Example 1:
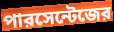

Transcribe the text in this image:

পারসেন্টেজের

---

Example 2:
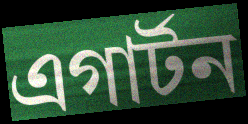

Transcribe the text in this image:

এগার্টন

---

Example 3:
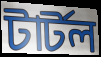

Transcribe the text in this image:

টার্টল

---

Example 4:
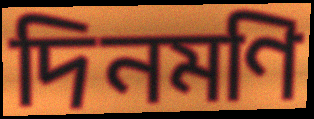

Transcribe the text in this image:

দিনমণি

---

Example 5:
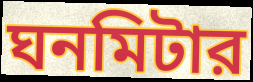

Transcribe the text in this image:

ঘনমিটার